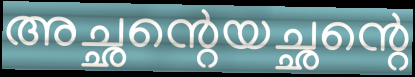
അച്ഛന്റെയച്ഛന്റെ